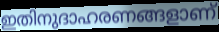
ഇതിനുദാഹരണങ്ങളാണ്